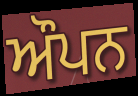
ਔਪਨ